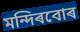
মন্দিৰবোৰ